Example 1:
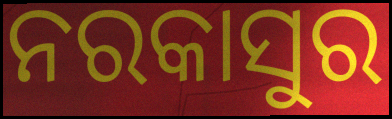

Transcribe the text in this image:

ନରକାସୁର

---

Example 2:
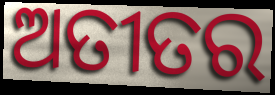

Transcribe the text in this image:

ଅତୀତର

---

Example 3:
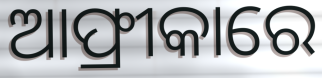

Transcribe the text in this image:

ଆଫ୍ରୀକାରେ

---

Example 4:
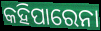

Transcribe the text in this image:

କହିପାରେନା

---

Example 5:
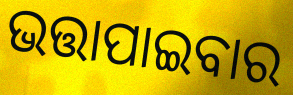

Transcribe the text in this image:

ଭତ୍ତାପାଇବାର